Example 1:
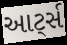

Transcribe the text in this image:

આટ્‌ર્સ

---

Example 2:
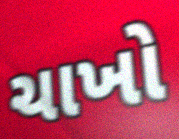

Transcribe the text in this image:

ચાખો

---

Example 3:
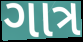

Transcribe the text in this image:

ગાત્ર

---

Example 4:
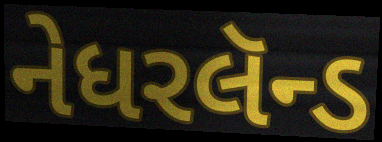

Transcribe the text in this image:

નેધરલૅન્ડ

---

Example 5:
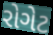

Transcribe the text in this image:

રોગેટ